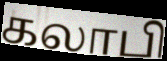
கலாபி